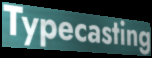
Typecasting